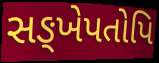
સઙ્ખેપતોપિ